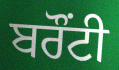
ਬਰੌਂਟੀ